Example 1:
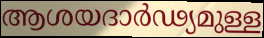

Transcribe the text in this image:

ആശയദാർഢ്യമുള്ള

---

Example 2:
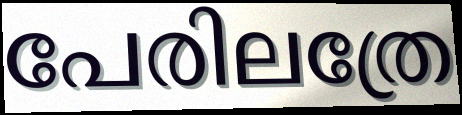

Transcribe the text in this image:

പേരിലത്രേ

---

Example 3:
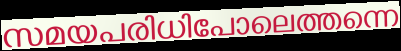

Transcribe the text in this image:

സമയപരിധിപോലെത്തന്നെ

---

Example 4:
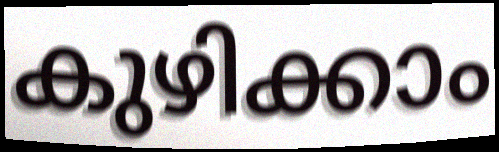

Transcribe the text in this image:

കുഴിക്കാം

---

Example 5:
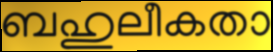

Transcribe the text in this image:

ബഹുലീകതാ